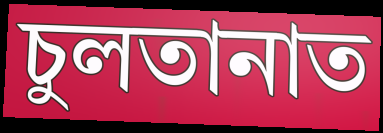
চুলতানাত